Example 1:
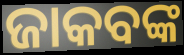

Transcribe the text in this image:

ଜାକବଙ୍କ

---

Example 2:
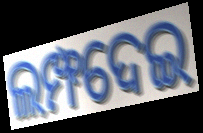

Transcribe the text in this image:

ଲମ୍ଫଦେଇ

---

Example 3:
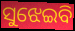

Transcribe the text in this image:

ସୁଝେଇବି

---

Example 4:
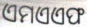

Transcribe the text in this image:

ଏମଏଏଫ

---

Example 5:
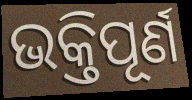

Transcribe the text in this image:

ଭକ୍ତିପୂର୍ଣ